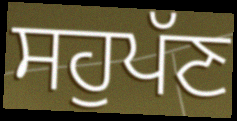
ਸਹੁਪੱਣ